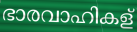
ഭാരവാഹികള്